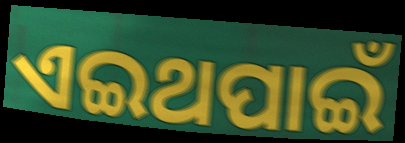
ଏଇଥପାଇଁ